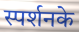
स्पर्शनके